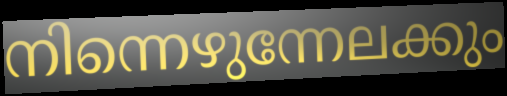
നിന്നെഴുന്നേലക്കും